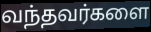
வந்தவர்களை